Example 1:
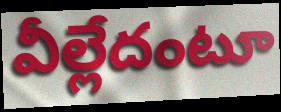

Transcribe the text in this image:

వీల్లేదంటూ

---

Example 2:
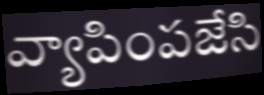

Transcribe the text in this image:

వ్యాపింపజేసి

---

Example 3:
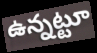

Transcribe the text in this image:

ఉన్నట్టూ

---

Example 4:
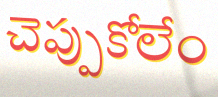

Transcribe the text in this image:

చెప్పుకోలేం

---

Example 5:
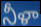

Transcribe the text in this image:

నీళా